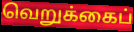
வெறுக்கைப்